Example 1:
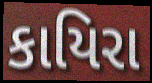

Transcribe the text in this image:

કાયિરા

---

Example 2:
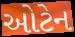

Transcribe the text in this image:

ઓટેન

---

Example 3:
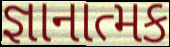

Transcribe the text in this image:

જ્ઞાનાત્મક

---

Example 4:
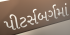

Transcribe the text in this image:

પીટર્સબર્ગમાં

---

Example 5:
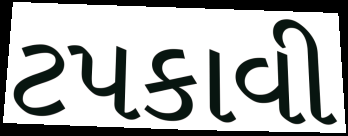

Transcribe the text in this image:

ટપકાવી